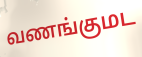
வணங்குமட